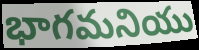
భాగమనియు